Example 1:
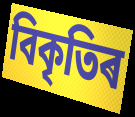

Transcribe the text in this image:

বিকৃতিৰ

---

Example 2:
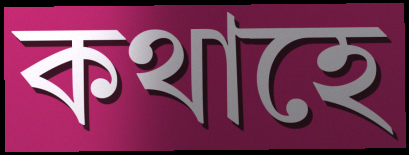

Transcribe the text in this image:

কথাহে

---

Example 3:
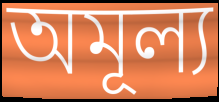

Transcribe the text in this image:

অমূল্য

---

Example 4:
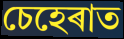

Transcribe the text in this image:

চেহেৰাত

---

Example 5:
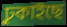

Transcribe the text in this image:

ঢুকাইছে